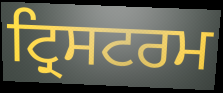
ਟ੍ਰਿਸਟਰਮ